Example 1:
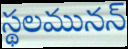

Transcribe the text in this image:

స్థలమునన్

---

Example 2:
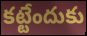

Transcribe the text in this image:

కట్టేందుకు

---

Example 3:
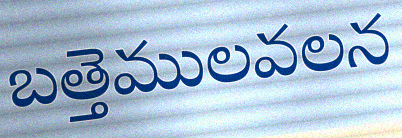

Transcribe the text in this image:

బత్తెములవలన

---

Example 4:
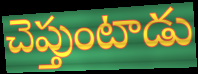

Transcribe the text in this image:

చెప్తుంటాడు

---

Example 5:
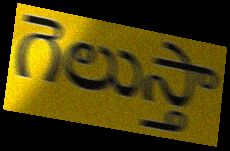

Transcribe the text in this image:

గెలుస్తా